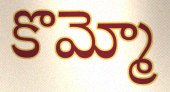
కొమ్మో